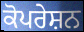
ਕੋਪਰੇਸ਼ਨ